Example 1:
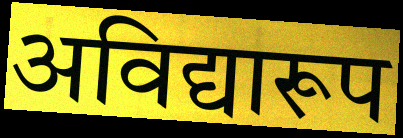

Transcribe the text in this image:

अविद्यारूप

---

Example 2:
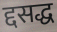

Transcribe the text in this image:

द्दसद्ध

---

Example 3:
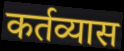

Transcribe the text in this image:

कर्तव्यास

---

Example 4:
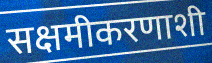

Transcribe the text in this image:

सक्षमीकरणाशी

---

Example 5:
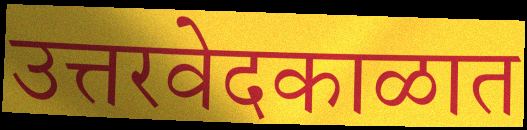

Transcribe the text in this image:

उत्तरवेदकाळात